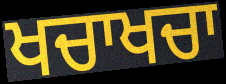
ਖਚਾਖਚਾ